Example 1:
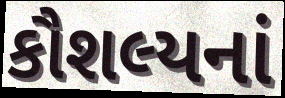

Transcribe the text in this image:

કૌશલ્યનાં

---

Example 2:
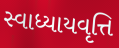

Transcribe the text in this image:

સ્વાધ્યાયવૃત્તિ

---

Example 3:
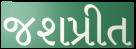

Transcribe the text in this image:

જશપ્રીત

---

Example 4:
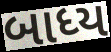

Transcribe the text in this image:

બાધ્ય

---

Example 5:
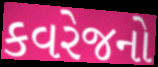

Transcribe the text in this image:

કવરેજનો